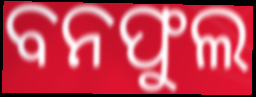
ବନଫୁଲ